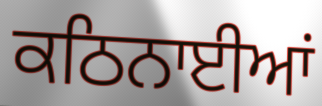
ਕਠਿਨਾਈਆਂ